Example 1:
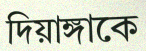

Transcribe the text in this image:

দিয়াঙ্গাকে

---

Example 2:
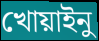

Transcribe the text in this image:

খোয়াইনু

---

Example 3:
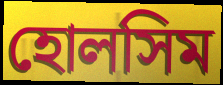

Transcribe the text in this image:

হোলসিম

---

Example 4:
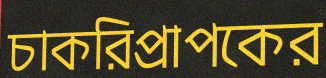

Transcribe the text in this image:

চাকরিপ্রাপকের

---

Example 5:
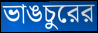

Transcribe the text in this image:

ভাঙচুরের